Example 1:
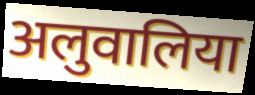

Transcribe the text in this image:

अलुवालिया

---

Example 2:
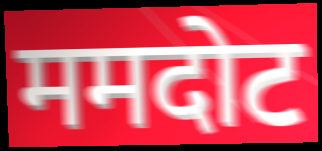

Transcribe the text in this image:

ममदोट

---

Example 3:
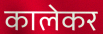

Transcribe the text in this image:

कालेकर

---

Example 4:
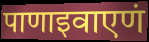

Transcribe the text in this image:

पाणाइवाएणं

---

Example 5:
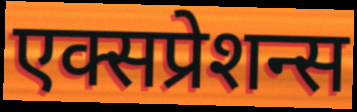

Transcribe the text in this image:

एक्सप्रेशन्स